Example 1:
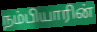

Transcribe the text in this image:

நம்பியாரின்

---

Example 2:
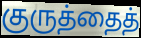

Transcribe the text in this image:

குருத்தைத்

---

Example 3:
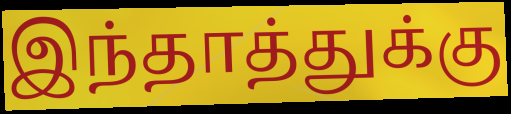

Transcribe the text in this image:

இந்தாத்துக்கு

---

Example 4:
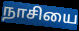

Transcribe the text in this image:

நாசியை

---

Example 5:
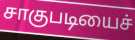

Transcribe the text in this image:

சாகுபடியைச்